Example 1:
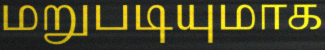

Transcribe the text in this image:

மறுபடியுமாக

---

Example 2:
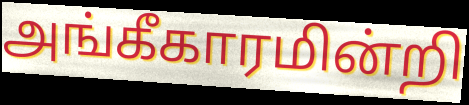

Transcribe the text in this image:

அங்கீகாரமின்றி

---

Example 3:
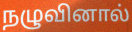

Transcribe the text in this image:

நழுவினால்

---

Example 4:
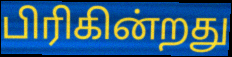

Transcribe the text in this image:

பிரிகின்றது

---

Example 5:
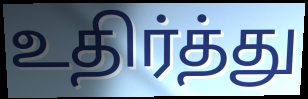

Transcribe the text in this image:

உதிர்த்து